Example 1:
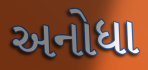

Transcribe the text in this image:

અનોધા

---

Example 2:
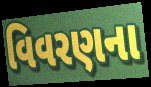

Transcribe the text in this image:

વિવરણના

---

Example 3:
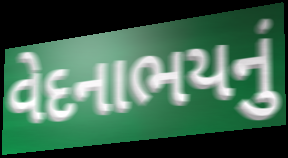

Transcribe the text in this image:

વેદનાભયનું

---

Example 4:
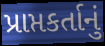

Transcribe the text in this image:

પ્રાપ્તકર્તાનું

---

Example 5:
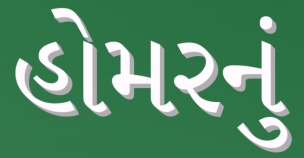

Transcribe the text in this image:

હોમરનું